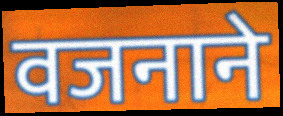
वजनाने